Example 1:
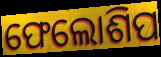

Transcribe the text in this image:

ଫେଲୋଶିପ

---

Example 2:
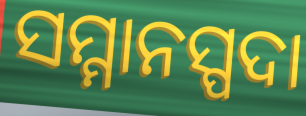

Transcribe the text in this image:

ସମ୍ମାନସ୍ପଦା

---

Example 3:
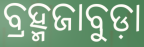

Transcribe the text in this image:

ବ୍ରହ୍ମଜାବୁଡ଼ା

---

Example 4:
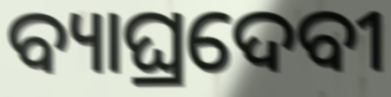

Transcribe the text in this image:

ବ୍ୟାଘ୍ରଦେବୀ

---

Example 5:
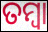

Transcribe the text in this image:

ତମ୍ୱା